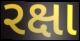
રક્ષા